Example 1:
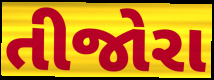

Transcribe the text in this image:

તીજોરા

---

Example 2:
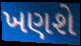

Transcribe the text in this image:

ખણશે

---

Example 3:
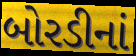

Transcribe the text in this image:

બોરડીનાં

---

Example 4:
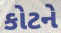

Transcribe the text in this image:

કોટને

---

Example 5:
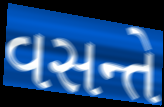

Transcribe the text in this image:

વસન્તે